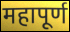
महापूर्ण